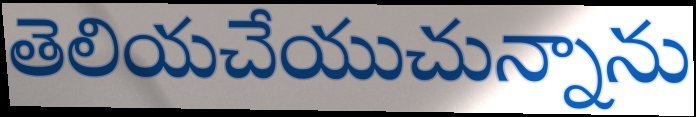
తెలియచేయుచున్నాను